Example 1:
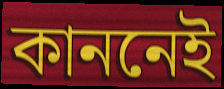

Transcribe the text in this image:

কাননেই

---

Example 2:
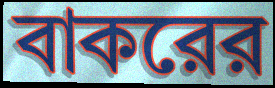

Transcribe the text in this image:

বাকরের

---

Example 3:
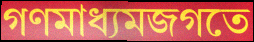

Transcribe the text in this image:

গণমাধ্যমজগতে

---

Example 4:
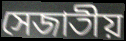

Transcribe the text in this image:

সেজাতীয়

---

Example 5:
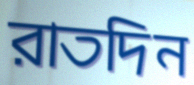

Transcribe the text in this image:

রাতদিন